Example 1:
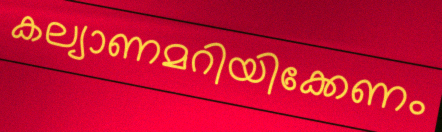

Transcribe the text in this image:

കല്യാണമറിയിക്കേണം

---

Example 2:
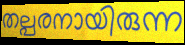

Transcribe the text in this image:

തല്പരനായിരുന്ന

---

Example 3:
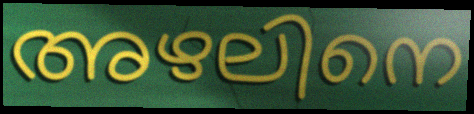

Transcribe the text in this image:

അഴലിനെ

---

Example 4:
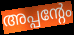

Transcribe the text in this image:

അപ്പന്റേം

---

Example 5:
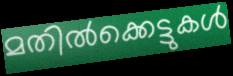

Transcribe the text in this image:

മതിൽക്കെട്ടുകൾ